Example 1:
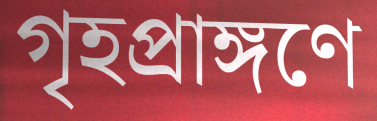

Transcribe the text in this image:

গৃহপ্রাঙ্গণে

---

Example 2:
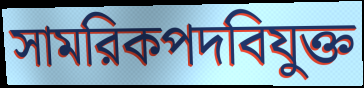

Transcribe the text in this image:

সামরিকপদবিযুক্ত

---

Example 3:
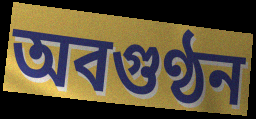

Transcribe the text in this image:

অবগুণ্ঠন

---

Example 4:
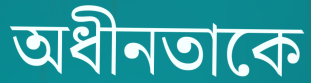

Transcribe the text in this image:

অধীনতাকে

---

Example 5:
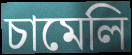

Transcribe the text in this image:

চামেলি